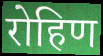
रोहिण